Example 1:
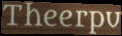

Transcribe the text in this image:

Theerpu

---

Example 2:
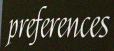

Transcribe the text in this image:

preferences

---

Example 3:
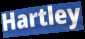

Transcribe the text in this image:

Hartley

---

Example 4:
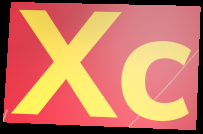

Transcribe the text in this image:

Xc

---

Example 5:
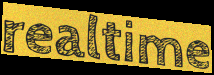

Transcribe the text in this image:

realtime